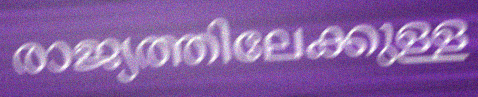
രാജ്യത്തിലേക്കുള്ള